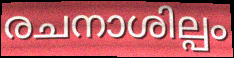
രചനാശില്പം